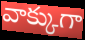
వాక్కుగా